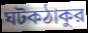
ঘটকঠাকুর